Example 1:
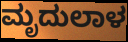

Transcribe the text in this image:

ಮೃದುಲಾಳ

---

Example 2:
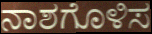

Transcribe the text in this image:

ನಾಶಗೊಳಿಸ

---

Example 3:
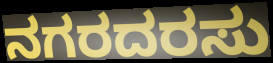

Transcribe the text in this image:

ನಗರದರಸು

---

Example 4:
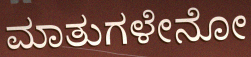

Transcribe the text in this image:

ಮಾತುಗಳೇನೋ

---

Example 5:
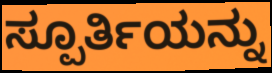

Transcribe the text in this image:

ಸ್ಪೂರ್ತಿಯನ್ನು